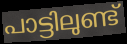
പാട്ടിലുണ്ട്